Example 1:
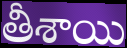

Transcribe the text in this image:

తీశాయి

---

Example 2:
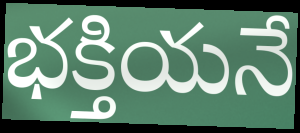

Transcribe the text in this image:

భక్తియనే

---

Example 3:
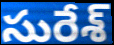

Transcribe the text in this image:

సురేశ్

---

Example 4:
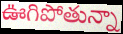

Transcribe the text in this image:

ఊగిపోతున్నా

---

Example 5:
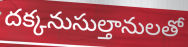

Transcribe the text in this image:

దక్కనుసుల్తానులతో